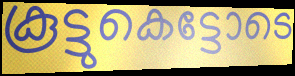
കൂട്ടുകെട്ടോടെ